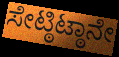
ಸೇಟ್ಠಿಟ್ಠಾನೇ